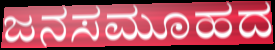
ಜನಸಮೂಹದ